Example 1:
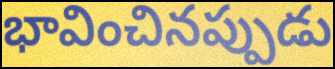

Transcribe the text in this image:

భావించినప్పుడు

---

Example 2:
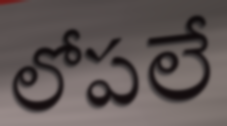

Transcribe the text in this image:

లోపలే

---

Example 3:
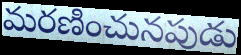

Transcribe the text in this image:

మరణించునపుడు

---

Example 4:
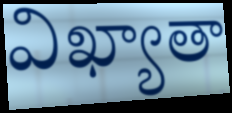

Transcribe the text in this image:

విఖ్యాతా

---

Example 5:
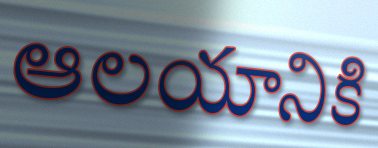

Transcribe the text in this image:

ఆలయానికి